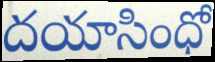
దయాసింధో